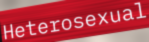
Heterosexual